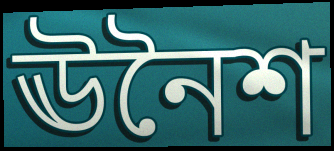
ঊনৈশ